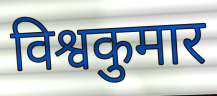
विश्वकुमार